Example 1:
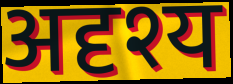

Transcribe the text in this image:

अदृश्य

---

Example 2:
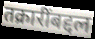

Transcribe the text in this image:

तक्रारींबद्दल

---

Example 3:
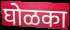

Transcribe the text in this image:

घोळका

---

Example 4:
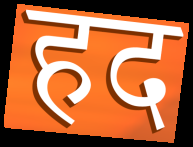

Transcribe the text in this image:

हद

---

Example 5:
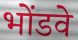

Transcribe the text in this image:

भोंडवे